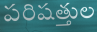
పరిషత్తుల